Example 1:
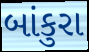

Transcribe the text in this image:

બાંકુરા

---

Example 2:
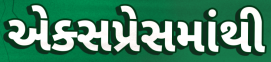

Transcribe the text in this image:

એક્સપ્રેસમાંથી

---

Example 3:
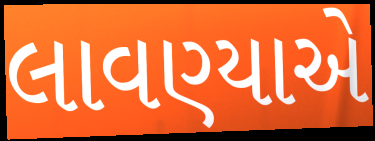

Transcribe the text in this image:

લાવણ્યાએ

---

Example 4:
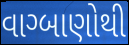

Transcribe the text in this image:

વાગ્બાણોથી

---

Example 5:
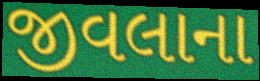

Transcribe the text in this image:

જીવલાના